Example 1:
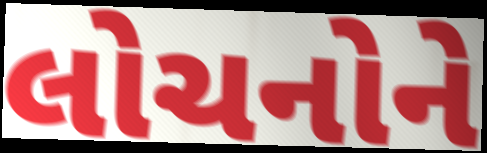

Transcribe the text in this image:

લોચનોને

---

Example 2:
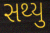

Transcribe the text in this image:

સથ્યુ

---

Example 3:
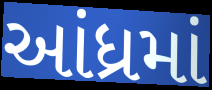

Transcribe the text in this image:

આંધ્રમાં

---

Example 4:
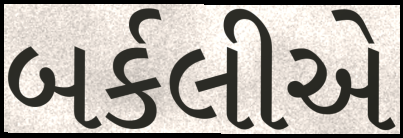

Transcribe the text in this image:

બર્કલીએ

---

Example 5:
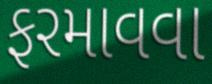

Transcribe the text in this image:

ફરમાવવા